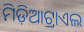
ମିଡ଼ିଆଟ୍ରାଏଲ